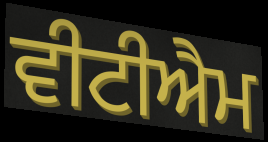
ਵੀਟੀਐਮ